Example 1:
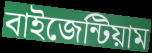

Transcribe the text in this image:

বাইজেন্টিয়াম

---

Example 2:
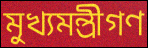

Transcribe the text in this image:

মুখ্যমন্ত্রীগণ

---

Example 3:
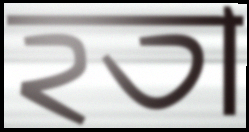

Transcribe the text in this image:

হতা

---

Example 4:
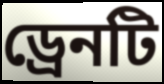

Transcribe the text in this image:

ড্রেনটি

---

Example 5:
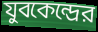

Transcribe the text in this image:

যুবকেন্দ্রের